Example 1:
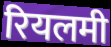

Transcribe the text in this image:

रियलमी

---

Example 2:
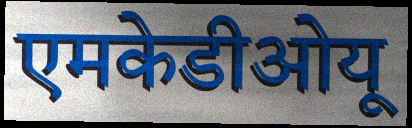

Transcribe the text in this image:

एमकेडीओयू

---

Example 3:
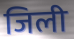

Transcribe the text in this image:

जिली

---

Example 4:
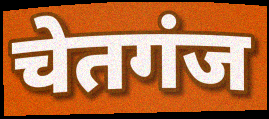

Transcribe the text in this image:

चेतगंज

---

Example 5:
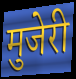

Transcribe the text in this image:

मुजेरी